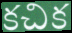
కచిక